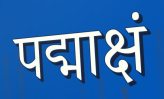
पद्माक्षं